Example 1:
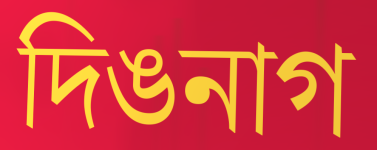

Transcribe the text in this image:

দিঙনাগ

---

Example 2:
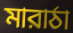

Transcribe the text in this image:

মারাঠা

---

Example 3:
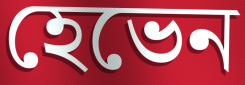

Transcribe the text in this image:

হেভেন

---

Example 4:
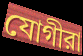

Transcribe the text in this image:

যোগীরা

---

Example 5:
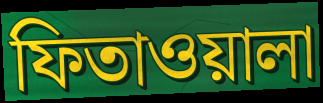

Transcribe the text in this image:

ফিতাওয়ালা